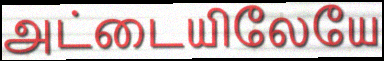
அட்டையிலேயே